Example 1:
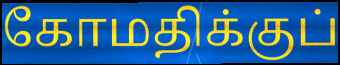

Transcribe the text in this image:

கோமதிக்குப்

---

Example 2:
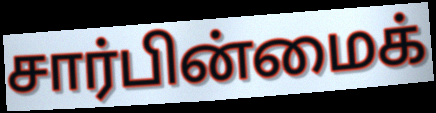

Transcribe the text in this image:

சார்பின்மைக்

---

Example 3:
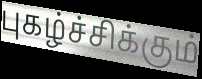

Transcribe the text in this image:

புகழ்ச்சிக்கும்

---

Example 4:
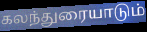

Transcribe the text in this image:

கலந்துரையாடும்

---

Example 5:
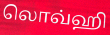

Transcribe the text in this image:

லொவ்ஹி